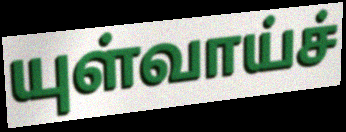
யுள்வாய்ச்